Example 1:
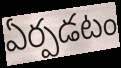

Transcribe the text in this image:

ఏర్పడటం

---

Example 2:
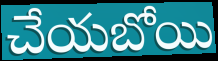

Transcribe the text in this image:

చేయబోయి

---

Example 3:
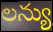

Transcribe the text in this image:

లన్యు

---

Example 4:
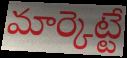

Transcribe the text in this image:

మార్కెట్టే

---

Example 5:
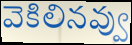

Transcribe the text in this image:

వెకిలినవ్వు